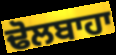
ਢੋਲਬਾਹਾ